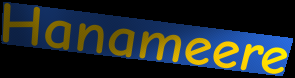
Hanameere